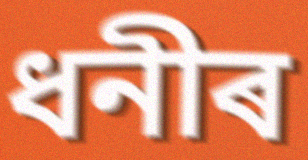
ধনীৰ